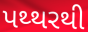
પથ્થરથી